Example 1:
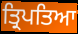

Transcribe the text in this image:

ਤ੍ਰਿਪਤਿਆ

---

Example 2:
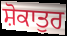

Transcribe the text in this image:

ਸ਼ੋਕਾਤੁਰ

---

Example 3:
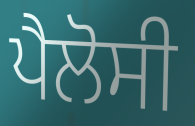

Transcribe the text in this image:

ਪੈਲੋਸੀ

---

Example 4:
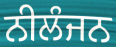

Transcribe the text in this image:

ਨੀਲੰਜਨ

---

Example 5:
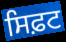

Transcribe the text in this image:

ਸਿਫ਼ਟ